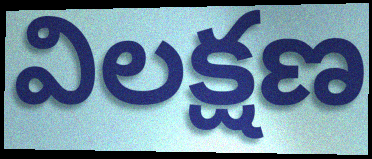
విలక్షణ